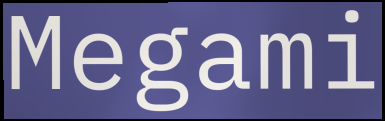
Megami